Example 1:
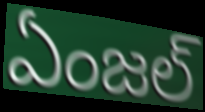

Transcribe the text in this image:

ఏంజల్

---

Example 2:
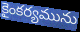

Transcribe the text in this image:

కైంకర్యమును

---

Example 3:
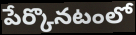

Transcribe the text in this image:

పేర్కొనటంలో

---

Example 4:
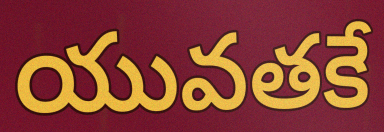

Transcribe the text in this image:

యువతకే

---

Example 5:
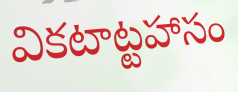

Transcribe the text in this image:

వికటాట్టహాసం